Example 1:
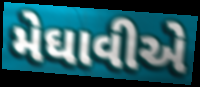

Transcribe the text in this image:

મેઘાવીએ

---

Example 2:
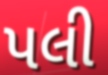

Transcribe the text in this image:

પલી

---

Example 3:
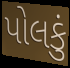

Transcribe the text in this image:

પોલકું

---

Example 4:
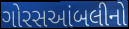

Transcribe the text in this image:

ગોરસઆંબલીનો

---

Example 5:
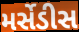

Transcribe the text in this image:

મર્સેડીસ